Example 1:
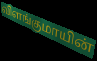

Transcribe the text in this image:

விளங்குமாயின்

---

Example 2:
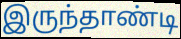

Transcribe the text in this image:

இருந்தாண்டி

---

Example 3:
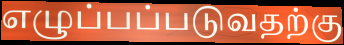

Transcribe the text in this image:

எழுப்பப்படுவதற்கு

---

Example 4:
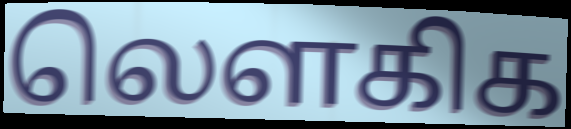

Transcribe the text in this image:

லௌகிக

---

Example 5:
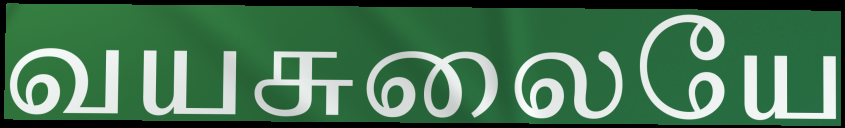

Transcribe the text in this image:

வயசுலையே